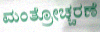
ಮಂತ್ರೋಚ್ಚರಣೆ